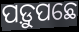
ପଡ଼ୁପଛେ